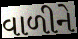
વાળીને